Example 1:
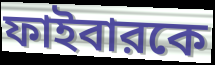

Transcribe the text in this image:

ফাইবারকে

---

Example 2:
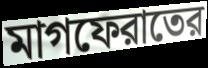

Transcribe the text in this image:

মাগফেরাতের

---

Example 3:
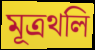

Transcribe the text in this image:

মূত্রথলি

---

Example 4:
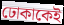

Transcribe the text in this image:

ঢোকাকেই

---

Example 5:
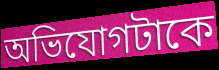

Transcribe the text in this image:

অভিযোগটাকে